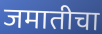
जमातीचा